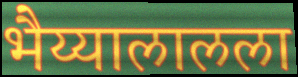
भैय्यालालला